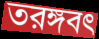
তরঙ্গবৎ